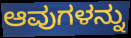
ಆವುಗಳನ್ನು